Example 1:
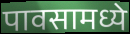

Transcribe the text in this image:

पावसामध्ये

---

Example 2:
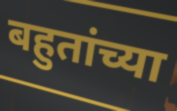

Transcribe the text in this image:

बहुतांच्या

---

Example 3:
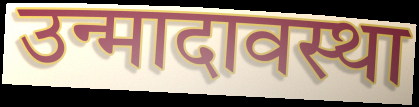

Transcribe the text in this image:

उन्मादावस्था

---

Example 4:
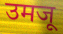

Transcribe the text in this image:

उमजू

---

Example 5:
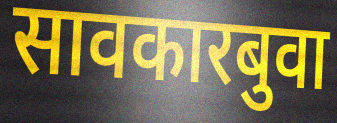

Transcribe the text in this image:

सावकारबुवा